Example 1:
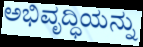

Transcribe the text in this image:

ಅಭಿವೃದ್ಧಿಯನ್ನು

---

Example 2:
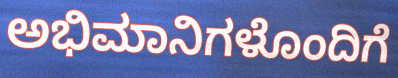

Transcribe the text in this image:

ಅಭಿಮಾನಿಗಳೊಂದಿಗೆ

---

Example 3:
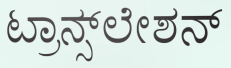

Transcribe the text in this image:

ಟ್ರಾನ್ಸ್‌ಲೇಶನ್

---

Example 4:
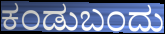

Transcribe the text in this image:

ಕಂಡುಬಂದು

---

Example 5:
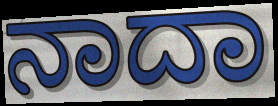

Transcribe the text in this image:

ನಾದಾ